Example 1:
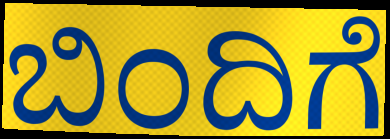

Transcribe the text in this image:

ಬಿಂದಿಗೆ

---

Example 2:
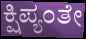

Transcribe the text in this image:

ಕ್ಷಿಪ್ಯಂತೇ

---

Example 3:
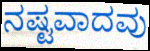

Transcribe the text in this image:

ನಷ್ಟವಾದವು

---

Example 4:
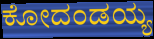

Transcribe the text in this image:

ಕೋದಂಡಯ್ಯ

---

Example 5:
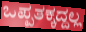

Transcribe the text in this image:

ಒಪ್ಪತಕ್ಕದ್ದಲ್ಲ